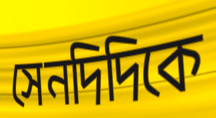
সেনদিদিকে